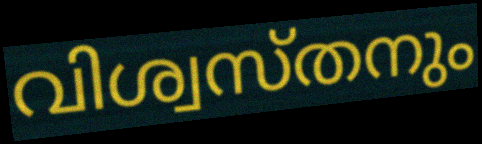
വിശ്വസ്തനും